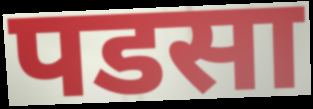
पडसा